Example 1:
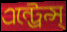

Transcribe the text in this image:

এন্ট্রেন্স্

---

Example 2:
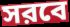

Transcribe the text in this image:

সরবে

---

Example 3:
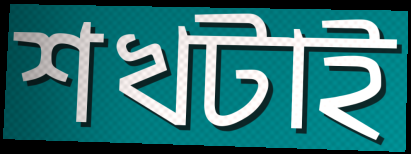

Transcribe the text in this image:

শখটাই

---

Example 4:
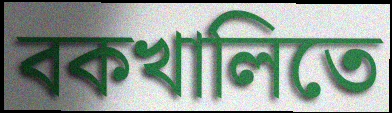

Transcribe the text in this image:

বকখালিতে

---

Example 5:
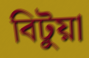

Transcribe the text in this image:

বিটুয়া